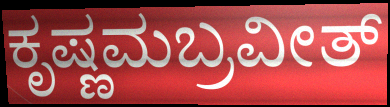
ಕೃಷ್ಣಮಬ್ರವೀತ್